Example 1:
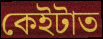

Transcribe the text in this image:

কেইটাত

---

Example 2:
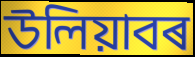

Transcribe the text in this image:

উলিয়াবৰ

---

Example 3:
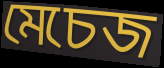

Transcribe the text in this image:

মেচেজ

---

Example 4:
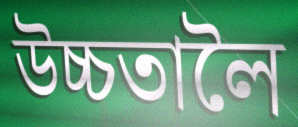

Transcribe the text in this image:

উচ্চতালৈ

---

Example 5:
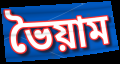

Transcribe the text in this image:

ভৈয়াম